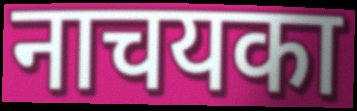
नाचयका